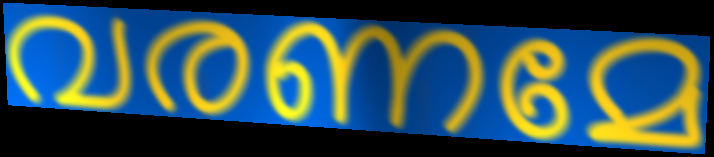
വരണമേ